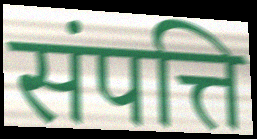
संपत्ति